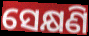
ସେକ୍ଷଣି